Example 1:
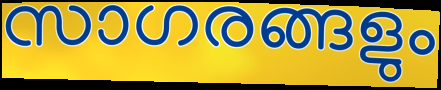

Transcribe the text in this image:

സാഗരങ്ങളും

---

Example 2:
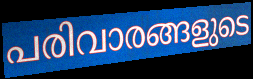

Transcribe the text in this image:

പരിവാരങ്ങളുടെ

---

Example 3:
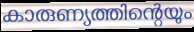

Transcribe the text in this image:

കാരുണ്യത്തിന്റെയും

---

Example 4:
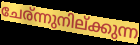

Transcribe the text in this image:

ചേര്ന്നുനില്ക്കുന്ന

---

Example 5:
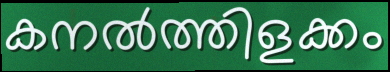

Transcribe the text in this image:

കനൽത്തിളക്കം